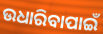
ଉଧାରିବାପାଇଁ